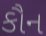
કૌન